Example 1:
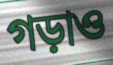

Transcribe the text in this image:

গড়াও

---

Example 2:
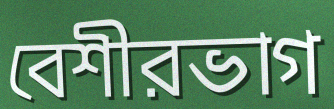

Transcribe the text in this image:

বেশীরভাগ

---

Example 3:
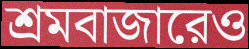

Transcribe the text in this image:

শ্রমবাজারেও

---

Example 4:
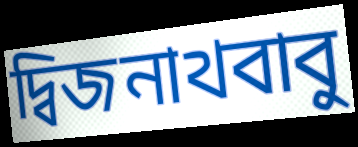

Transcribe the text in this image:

দ্বিজনাথবাবু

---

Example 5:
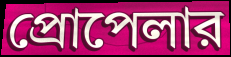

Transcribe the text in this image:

প্রোপেলার